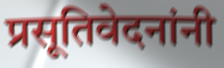
प्रसूतिवेदनांनी